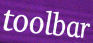
toolbar